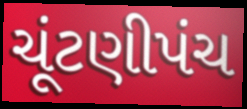
ચૂંટણીપંચ